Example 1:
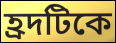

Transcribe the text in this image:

হ্রদটিকে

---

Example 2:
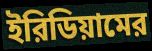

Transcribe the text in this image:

ইরিডিয়ামের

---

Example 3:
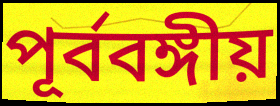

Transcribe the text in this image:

পূর্ববঙ্গীয়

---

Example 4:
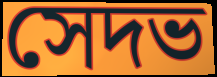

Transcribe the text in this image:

সেদভ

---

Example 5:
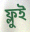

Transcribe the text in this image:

ফ্লুই